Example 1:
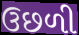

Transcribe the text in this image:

ઉછળી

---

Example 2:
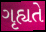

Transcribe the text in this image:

ગૃહ્યતે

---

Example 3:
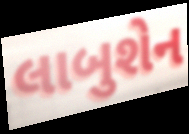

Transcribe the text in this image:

લાબુશેન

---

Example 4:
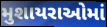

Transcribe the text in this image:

મુશાયરાઓમાં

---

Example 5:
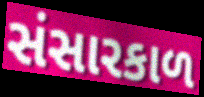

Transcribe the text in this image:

સંસારકાળ